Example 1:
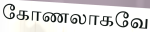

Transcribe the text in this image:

கோணலாகவே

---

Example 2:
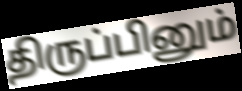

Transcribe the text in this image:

திருப்பினும்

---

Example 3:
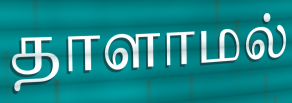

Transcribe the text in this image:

தாளாமல்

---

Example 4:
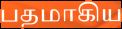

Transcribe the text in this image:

பதமாகிய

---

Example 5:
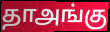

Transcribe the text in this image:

தாஅங்கு